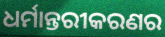
ଧର୍ମାନ୍ତରୀକରଣର